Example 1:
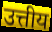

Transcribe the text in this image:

उत्तीय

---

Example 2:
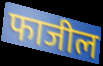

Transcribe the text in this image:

फाजील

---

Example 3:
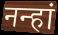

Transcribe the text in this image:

नन्हां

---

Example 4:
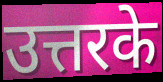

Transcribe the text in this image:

उत्तरके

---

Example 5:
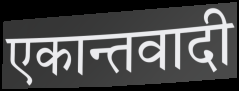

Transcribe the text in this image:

एकान्तवादी